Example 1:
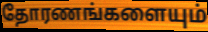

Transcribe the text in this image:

தோரணங்களையும்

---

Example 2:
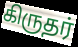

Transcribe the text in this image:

கிருதர்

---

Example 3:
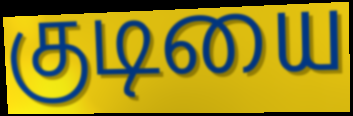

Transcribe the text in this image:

குடியை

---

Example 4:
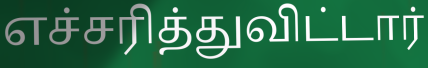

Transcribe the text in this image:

எச்சரித்துவிட்டார்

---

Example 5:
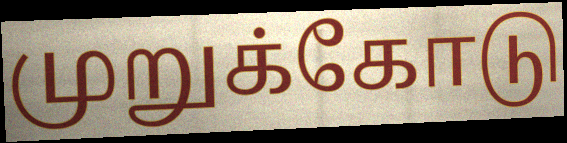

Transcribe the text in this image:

முறுக்கோடு